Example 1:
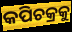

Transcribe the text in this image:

କପିଚକ୍ରକୁ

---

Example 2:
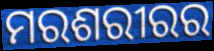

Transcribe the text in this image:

ମରଶରୀରର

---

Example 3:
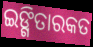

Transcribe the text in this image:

ଇଙ୍ଗିତାରକତ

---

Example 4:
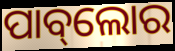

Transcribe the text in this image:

ପାବ୍‌ଲୋର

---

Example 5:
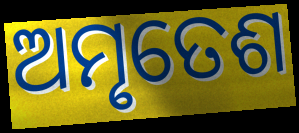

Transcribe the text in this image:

ଅମୃତେଶ